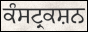
ਕੰਸਟ੍ਰਕਸ਼ਨ